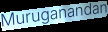
Muruganandan